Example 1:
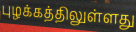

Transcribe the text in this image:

புழக்கத்திலுள்ளது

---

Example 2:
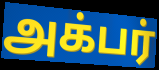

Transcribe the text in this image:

அக்பர்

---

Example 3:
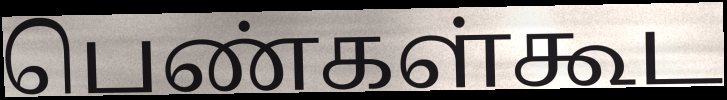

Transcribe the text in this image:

பெண்கள்கூட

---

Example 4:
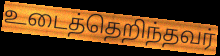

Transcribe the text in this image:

உடைத்தெறிந்தவர்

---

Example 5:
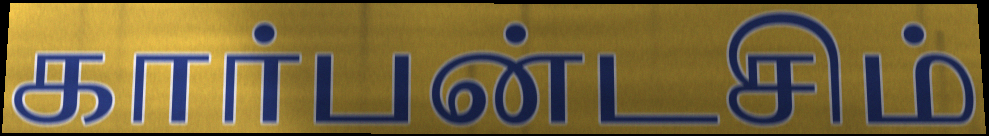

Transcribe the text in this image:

கார்பன்டசிம்